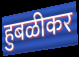
हुबळीकर